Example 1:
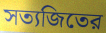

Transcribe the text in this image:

সত্যজিতের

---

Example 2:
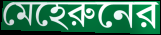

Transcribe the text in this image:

মেহেরুনের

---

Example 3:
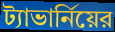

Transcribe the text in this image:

ট্যাভার্নিয়ের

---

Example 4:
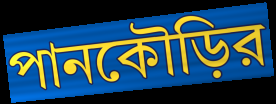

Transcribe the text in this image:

পানকৌড়ির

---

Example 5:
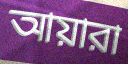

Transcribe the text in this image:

আয়ারা